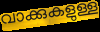
വാക്കുകളുള്ള